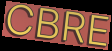
CBRE